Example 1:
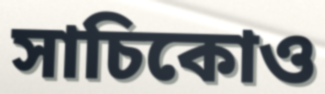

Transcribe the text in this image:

সাচিকোও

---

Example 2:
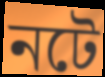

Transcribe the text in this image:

নটে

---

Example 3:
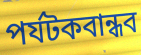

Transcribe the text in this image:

পর্যটকবান্ধব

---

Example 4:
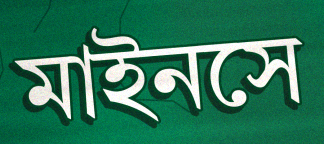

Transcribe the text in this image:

মাইনসে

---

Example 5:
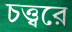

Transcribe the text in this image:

চত্ত্বরে